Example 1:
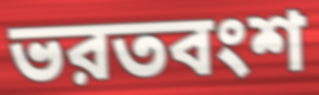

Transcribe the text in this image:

ভরতবংশ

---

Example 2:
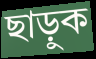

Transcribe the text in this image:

ছাড়ুক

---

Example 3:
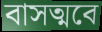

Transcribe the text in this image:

বাসত্মবে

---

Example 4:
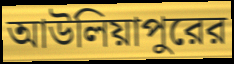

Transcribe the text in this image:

আউলিয়াপুরের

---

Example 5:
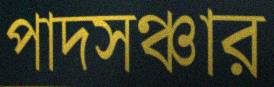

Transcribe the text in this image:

পাদসঞ্চার